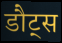
डौट्स